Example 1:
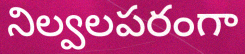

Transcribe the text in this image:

నిల్వలపరంగా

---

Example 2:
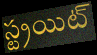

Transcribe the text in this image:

స్ట్రయిట్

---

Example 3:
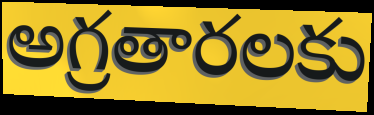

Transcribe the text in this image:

అగ్రతారలకు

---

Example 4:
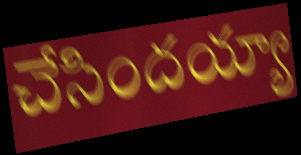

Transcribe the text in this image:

చేసిందయ్యా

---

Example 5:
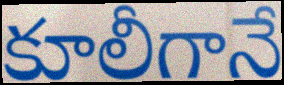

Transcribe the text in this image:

కూలీగానే